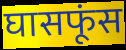
घासफूंस